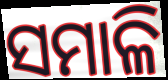
ସମାଳି